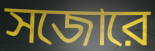
সজোরে